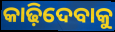
କାଢ଼ିଦେବାକୁ